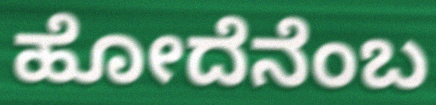
ಹೋದೆನೆಂಬ